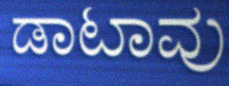
ಡಾಟಾವು